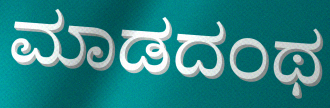
ಮಾಡದಂಥ